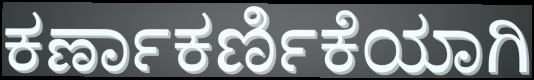
ಕರ್ಣಾಕರ್ಣಿಕೆಯಾಗಿ